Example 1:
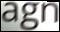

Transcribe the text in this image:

agn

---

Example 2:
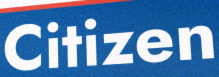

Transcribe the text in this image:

Citizen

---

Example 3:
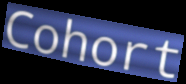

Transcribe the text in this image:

Cohort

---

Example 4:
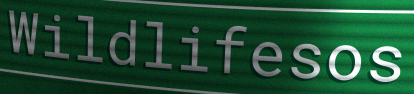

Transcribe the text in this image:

Wildlifesos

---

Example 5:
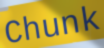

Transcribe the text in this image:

Chunk